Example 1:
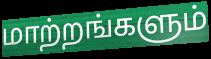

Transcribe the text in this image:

மாற்றங்களும்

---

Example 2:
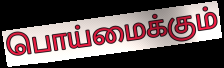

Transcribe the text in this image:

பொய்மைக்கும்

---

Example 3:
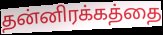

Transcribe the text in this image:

தன்னிரக்கத்தை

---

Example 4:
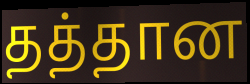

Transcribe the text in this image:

தத்தான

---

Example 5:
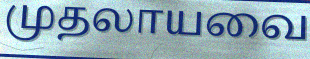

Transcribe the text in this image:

முதலாயவை